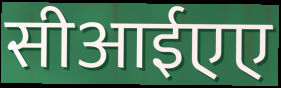
सीआईएए